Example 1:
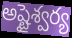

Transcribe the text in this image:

అష్టైశ్వర్య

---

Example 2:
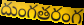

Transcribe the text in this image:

దుంగతరంగ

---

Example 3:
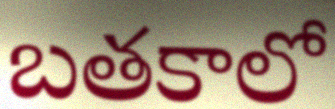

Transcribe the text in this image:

బతకాలో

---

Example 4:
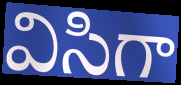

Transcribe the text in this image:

విసిగా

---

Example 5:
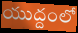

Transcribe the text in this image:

యుద్దంలో